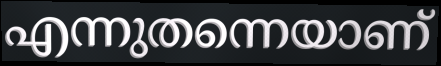
എന്നുതന്നെയാണ്